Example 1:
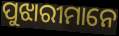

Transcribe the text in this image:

ପୁଝାରୀମାନେ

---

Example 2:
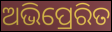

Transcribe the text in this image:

ଅଭିପ୍ରେରିତ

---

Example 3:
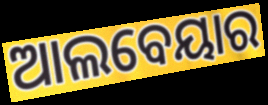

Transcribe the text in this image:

ଆଲବେୟାର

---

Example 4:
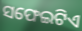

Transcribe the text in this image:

ସଫେଇଟିଏ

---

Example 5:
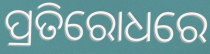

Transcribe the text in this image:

ପ୍ରତିରୋଧରେ